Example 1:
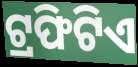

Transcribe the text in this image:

ଟ୍ରଫିଟିଏ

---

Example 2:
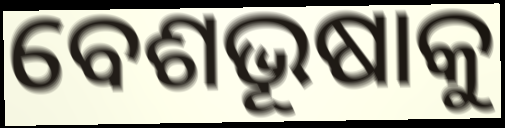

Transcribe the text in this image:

ବେଶଭୂଷାକୁ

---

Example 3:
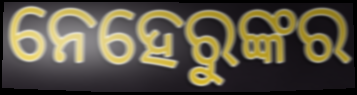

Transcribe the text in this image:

ନେହେରୁଙ୍କର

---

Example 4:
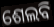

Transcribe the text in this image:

ଶେଲବି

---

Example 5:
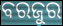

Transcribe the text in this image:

ବରଜୁର